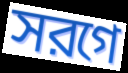
সরগে